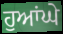
ਹੁਆਂਘੇ